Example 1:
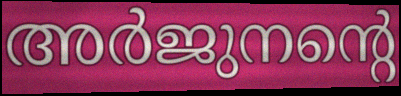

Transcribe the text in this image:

അർജുനന്റെ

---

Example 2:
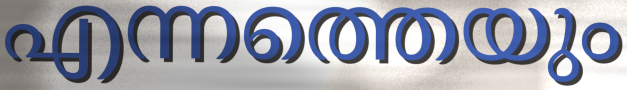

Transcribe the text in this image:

എന്നത്തെയും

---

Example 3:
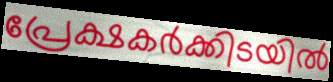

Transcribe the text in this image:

പ്രേക്ഷകർക്കിടയിൽ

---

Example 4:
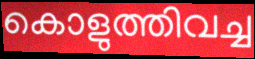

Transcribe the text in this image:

കൊളുത്തിവച്ച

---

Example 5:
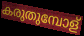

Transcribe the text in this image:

കരുതുമ്പോള്